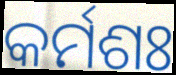
କର୍ମଶଃ